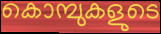
കൊമ്പുകളുടെ